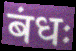
बंधः